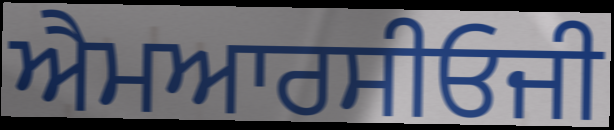
ਐਮਆਰਸੀਓਜੀ